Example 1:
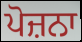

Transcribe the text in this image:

ਪੋਜ਼ਨਾ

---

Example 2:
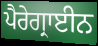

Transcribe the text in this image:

ਪੈਰੇਗ੍ਰਾਈਨ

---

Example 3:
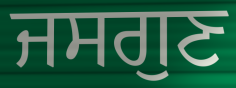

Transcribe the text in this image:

ਜਸਗੁਣ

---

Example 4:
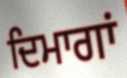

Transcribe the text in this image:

ਦਿਮਾਗਾਂ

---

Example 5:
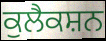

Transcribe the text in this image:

ਕੁਲੈਕਸ਼ਨ